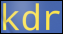
kdr